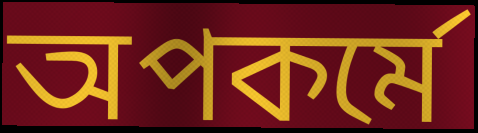
অপকর্মে